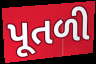
પૂતળી